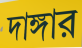
দাঙ্গার